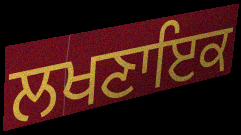
ਲਖਣਾਇਕ